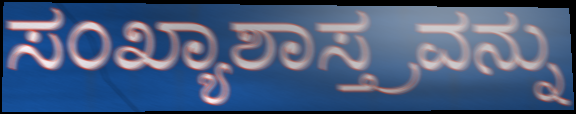
ಸಂಖ್ಯಾಶಾಸ್ತ್ರವನ್ನು